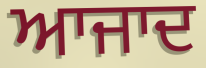
ਆਜਾਦ